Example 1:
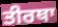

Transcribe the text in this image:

ਤੀਰਥਾ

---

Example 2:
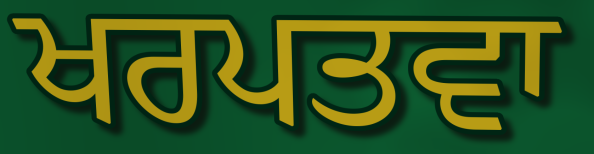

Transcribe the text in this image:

ਖਰਪਤਵਾ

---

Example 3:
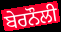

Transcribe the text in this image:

ਬੇਰਨੌਲੀ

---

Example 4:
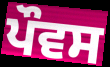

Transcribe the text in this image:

ਪੌਵਸ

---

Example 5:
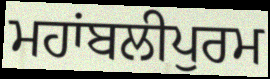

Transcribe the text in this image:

ਮਹਾਂਬਲੀਪੁਰਮ